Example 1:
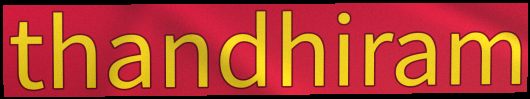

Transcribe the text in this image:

thandhiram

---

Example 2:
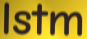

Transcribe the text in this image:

lstm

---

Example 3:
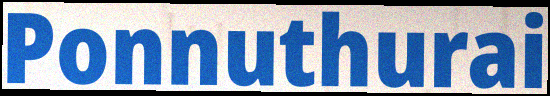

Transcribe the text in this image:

Ponnuthurai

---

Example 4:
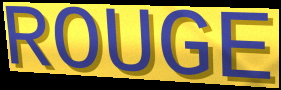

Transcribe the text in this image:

ROUGE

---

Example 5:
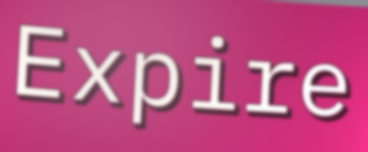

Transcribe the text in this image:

Expire